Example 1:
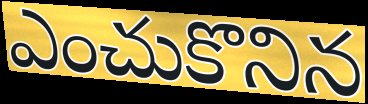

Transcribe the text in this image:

ఎంచుకొనిన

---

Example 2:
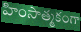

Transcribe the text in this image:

హింసాత్మకంగా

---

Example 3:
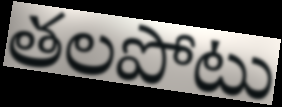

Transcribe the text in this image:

తలపోటు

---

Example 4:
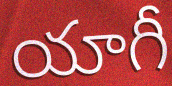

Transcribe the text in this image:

యాగీ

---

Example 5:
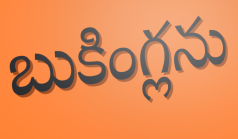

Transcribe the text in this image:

బుకింగ్లను